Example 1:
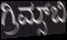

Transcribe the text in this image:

ಗ್ರಿಮ್ಸ್‌ಬಿ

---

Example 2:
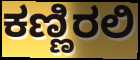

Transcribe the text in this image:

ಕಣ್ಣಿರಲಿ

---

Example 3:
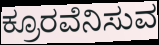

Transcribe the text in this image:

ಕ್ರೂರವೆನಿಸುವ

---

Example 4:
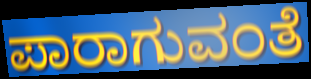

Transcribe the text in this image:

ಪಾರಾಗುವಂತೆ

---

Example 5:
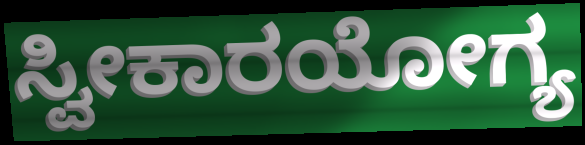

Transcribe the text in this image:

ಸ್ವೀಕಾರಯೋಗ್ಯ